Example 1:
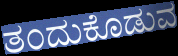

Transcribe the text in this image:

ತಂದುಕೊಡುವ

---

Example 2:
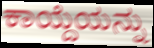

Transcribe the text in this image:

ಕಾಯ್ದೆಯನ್ನು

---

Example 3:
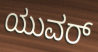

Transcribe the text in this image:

ಯುವರ್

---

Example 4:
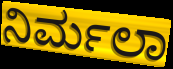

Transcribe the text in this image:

ನಿರ್ಮಲಾ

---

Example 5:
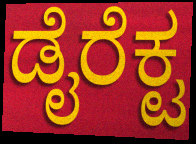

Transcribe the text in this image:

ಡೈರೆಕ್ಟ